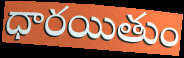
ధారయితుం